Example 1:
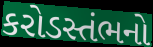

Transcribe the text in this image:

કરોડસ્તંભનો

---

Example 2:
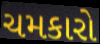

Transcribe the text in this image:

ચમકારો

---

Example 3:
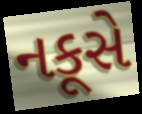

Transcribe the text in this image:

નકૂસે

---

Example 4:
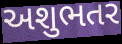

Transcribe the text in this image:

અશુભતર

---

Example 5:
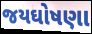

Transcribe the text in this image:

જયઘોષણા